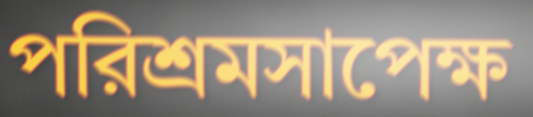
পরিশ্রমসাপেক্ষ